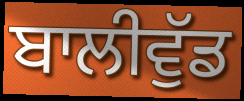
ਬਾਲੀਵੁੱਡ